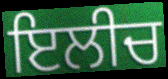
ਇਲੀਚ